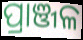
ପ୍ରାଞ୍ଜଳ